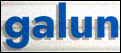
galun